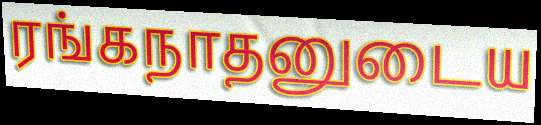
ரங்கநாதனுடைய